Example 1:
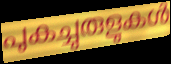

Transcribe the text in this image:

പുകച്ചുരുളുകൾ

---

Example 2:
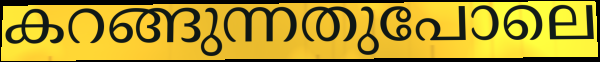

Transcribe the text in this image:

കറങ്ങുന്നതുപോലെ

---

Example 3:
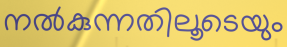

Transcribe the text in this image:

നൽകുന്നതിലൂടെയും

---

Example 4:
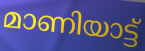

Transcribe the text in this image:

മാണിയാട്ട്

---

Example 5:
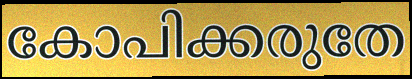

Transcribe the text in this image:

കോപിക്കരുതേ